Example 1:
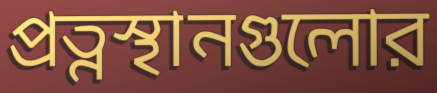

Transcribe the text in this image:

প্রত্নস্থানগুলোর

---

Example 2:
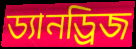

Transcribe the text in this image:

ড্যানড্রিজ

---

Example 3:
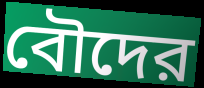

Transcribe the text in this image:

বৌদের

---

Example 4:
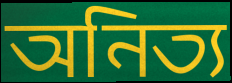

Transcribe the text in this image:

অনিত্য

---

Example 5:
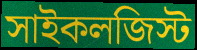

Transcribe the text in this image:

সাইকলজিস্ট